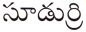
సూడుర్రి